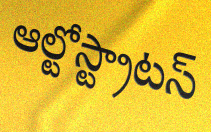
ఆల్టోస్ట్రాటస్